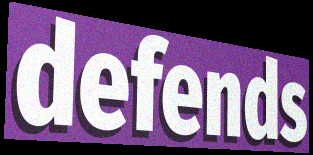
defends